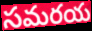
సమరయ